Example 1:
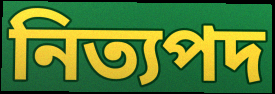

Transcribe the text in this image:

নিত্যপদ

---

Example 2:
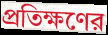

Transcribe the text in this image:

প্রতিক্ষণের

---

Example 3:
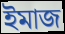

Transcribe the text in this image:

ইমাজ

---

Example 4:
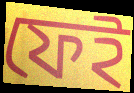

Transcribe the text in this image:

ফেই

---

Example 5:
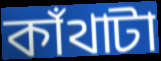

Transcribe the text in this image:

কাঁথাটা